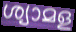
ശ്യാമള